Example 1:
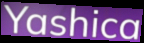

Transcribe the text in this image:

Yashica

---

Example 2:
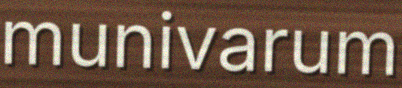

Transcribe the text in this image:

munivarum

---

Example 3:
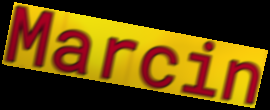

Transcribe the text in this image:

Marcin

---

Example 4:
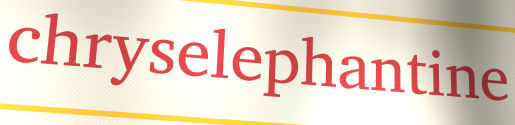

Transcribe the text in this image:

chryselephantine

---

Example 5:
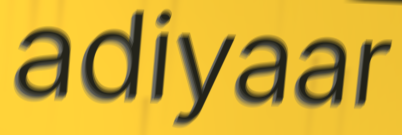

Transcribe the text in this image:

adiyaar